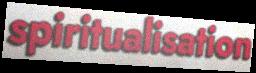
spiritualisation